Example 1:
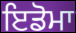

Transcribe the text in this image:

ਇਡੋਮਾ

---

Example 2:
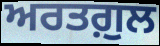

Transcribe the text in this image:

ਅਰਤਗ਼ੁਲ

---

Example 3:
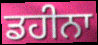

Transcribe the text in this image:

ਡਹੀਨਾ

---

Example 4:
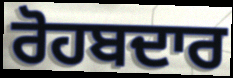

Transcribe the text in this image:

ਰੋਹਬਦਾਰ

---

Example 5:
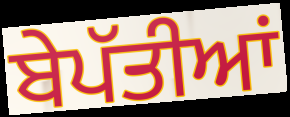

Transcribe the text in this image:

ਬੇਪੱਤੀਆਂ